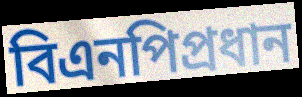
বিএনপিপ্রধান